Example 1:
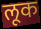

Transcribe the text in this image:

लूक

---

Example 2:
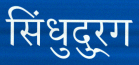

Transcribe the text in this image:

सिंधुदुर्ग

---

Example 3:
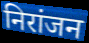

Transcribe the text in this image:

निरांजन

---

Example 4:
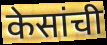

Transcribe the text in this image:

केसांची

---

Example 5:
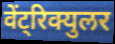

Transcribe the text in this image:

वेंट्रिक्युलर